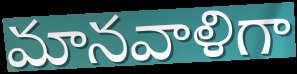
మానవాళిగా